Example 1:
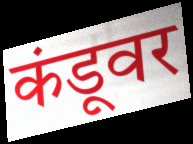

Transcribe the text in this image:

कंडूवर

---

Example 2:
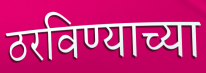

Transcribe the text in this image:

ठरविण्याच्या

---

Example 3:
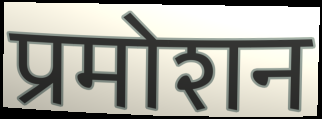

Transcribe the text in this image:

प्रमोशन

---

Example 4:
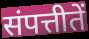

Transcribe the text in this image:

संपत्तीतें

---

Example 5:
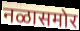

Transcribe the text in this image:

नळासमोर